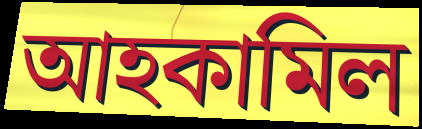
আহকামিল